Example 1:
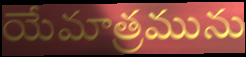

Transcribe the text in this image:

యేమాత్రమును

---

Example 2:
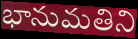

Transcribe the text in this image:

భానుమతిని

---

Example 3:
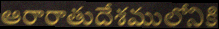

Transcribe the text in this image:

ఆరారాతుదేశములోనికి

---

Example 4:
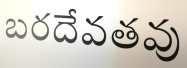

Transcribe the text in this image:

బరదేవతవు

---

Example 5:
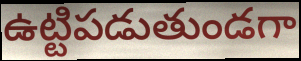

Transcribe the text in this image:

ఉట్టిపడుతుండగా